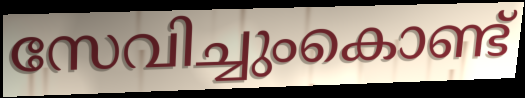
സേവിച്ചുംകൊണ്ട്